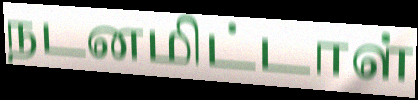
நடனமிட்டாள்